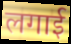
लगाई